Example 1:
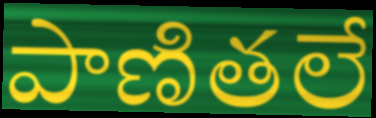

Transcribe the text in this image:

పాణితలే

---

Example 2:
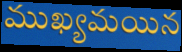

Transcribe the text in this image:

ముఖ్యమయిన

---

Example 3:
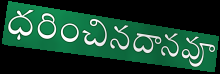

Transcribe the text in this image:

ధరించినదానవూ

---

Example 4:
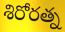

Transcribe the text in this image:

శిరోరత్న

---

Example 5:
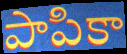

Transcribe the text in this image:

పాపికా